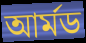
আৰ্মড